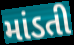
માંડતી